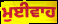
ਮੁਈਵਾਹ